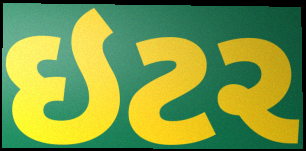
ઇટર